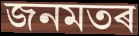
জনমতৰ